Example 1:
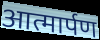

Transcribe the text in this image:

आत्मार्पण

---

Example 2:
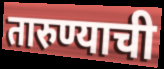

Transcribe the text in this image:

तारुण्याची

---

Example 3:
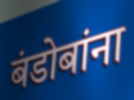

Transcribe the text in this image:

बंडोबांना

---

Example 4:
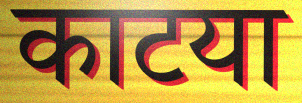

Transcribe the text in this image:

काटया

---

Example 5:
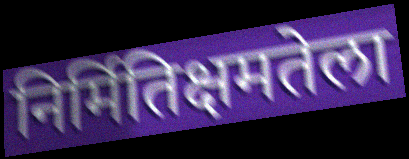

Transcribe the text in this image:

निर्मितिक्षमतेला